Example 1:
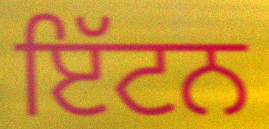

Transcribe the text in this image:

ਇੱਟਨ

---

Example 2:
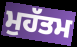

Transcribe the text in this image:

ਮੁਹੱਤਮ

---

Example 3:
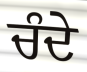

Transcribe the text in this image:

ਚੰਦੇ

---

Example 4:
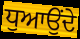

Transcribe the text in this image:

ਧੁਆਉਂਦੇ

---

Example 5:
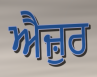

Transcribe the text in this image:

ਐਜ਼ੁਰ